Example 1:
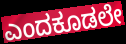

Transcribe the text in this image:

ಎಂದಕೂಡಲೇ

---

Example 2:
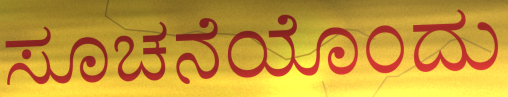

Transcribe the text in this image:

ಸೂಚನೆಯೊಂದು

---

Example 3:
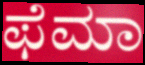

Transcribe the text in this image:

ಫೆಮಾ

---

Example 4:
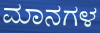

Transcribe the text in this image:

ಮಾನಗಳ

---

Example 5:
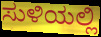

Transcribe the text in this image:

ಸುಳಿಯಲ್ಲಿ